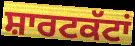
ਸ਼ਾਰਟਕੱਟਾਂ